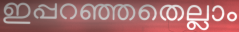
ഇപ്പറഞ്ഞതെല്ലാം